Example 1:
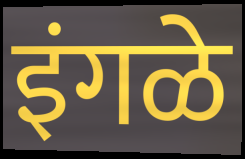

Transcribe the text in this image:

इंगळे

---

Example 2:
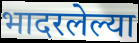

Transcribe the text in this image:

भादरलेल्या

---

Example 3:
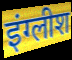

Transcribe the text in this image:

इंग्लीश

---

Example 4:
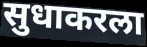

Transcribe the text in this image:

सुधाकरला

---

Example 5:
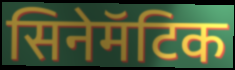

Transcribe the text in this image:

सिनेमॅटिक